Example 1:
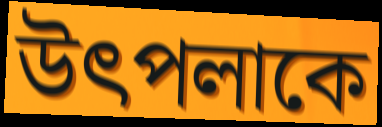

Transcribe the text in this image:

উৎপলাকে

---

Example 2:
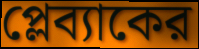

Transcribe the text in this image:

প্লেব্যাকের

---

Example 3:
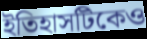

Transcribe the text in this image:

ইতিহাসটিকেও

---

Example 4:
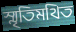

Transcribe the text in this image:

স্মৃতিমথিত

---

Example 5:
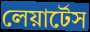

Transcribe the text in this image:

লেয়ার্টেস